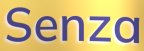
Senza